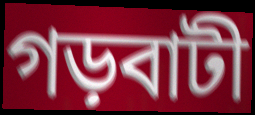
গড়বাটী